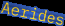
Aerides